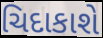
ચિદાકાશે